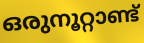
ഒരുനൂറ്റാണ്ട്